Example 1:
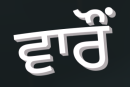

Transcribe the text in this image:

ਵਾਰੌਂ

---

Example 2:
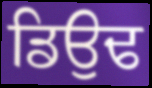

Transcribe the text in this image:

ਡਿਉਢ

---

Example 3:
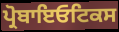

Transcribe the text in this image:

ਪ੍ਰੋਬਾਇਓਟਿਕਸ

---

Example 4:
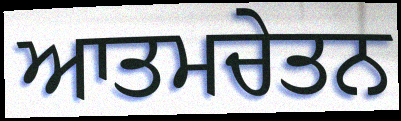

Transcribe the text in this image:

ਆਤਮਚੇਤਨ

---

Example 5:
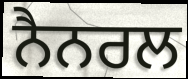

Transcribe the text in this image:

ਨੈਨਰਲ